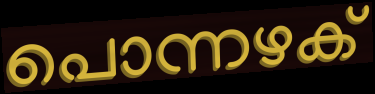
പൊന്നഴക്